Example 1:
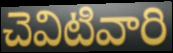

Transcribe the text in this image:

చెవిటివారి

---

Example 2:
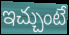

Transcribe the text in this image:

ఇచ్చుంటే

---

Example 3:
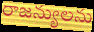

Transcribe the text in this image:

రాజన్యులను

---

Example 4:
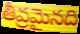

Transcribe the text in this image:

తీవ్రమైనది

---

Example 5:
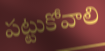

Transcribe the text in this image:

పట్టుకోవాలి